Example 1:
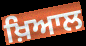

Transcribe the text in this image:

ਖ਼ਿਆਲ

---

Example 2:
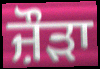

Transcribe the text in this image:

ਜ਼ੌੜਾ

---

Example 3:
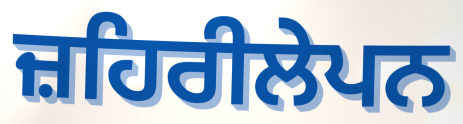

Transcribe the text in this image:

ਜ਼ਹਿਰੀਲੇਪਨ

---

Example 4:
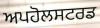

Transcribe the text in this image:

ਅਪਹੋਲਸਟਰਡ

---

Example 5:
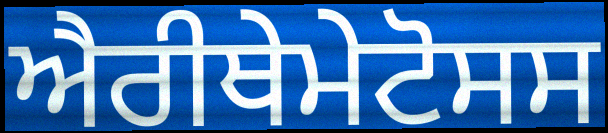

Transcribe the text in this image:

ਐਰੀਥੇਮੇਟੋਸਸ